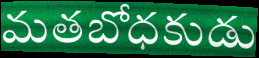
మతబోధకుడు